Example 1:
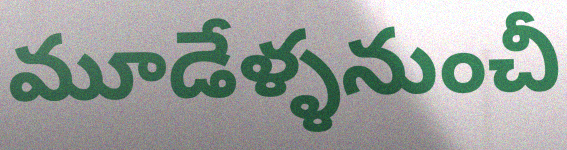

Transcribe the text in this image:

మూడేళ్ళనుంచీ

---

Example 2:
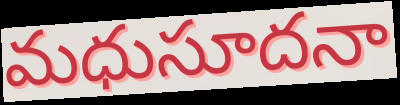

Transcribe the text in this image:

మధుసూదనా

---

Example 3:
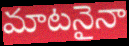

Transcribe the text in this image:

మాటనైనా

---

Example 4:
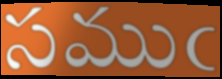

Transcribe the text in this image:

సముఁ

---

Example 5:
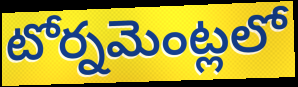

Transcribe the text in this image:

టోర్నమెంట్లలో